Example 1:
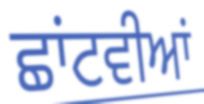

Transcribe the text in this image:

ਛਾਂਟਵੀਆਂ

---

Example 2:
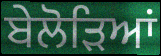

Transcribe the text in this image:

ਬੇਲੋੜਿਆਂ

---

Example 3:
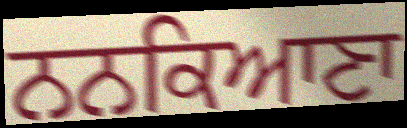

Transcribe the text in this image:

ਨਨਕਿਆਣਾ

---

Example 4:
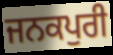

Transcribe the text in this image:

ਜਨਕਪੁਰੀ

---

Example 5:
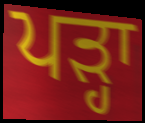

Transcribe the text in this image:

ਪੜ੍ਹਾ